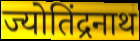
ज्योतिंद्रनाथ